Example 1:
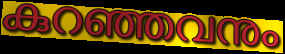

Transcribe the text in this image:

കുറഞ്ഞവനും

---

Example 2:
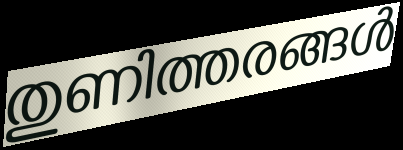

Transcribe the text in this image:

തുണിത്തരങ്ങൾ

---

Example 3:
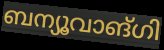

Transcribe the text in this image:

ബന്യൂവാങ്ഗി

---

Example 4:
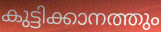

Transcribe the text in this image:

കുട്ടിക്കാനത്തും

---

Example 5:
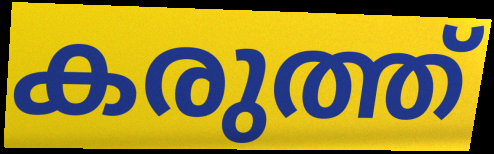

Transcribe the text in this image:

കരുത്ത്